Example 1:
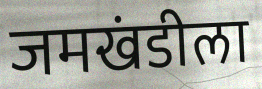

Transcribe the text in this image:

जमखंडीला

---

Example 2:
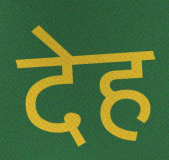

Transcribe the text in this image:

देह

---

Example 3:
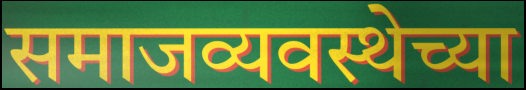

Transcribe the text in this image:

समाजव्यवस्थेच्या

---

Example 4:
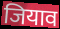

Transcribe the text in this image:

जियाव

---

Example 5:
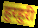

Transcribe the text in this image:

हुरहुरी